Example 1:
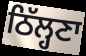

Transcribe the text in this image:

ਠਿੱਲ੍ਹਣਾ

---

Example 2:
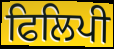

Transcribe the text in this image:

ਫਿਲਿਪੀ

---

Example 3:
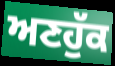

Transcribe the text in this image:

ਅਣਹੁੱਕ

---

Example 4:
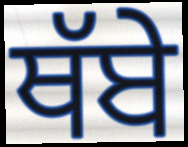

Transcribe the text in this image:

ਥੱਬੇ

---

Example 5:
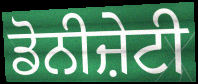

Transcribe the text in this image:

ਡੋਨੀਜ਼ੇਟੀ